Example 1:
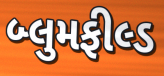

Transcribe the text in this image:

બ્લુમફીલ્ડ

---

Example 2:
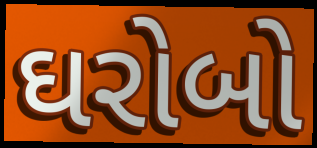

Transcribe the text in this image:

ઘરોબો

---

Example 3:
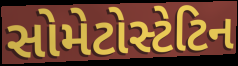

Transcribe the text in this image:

સોમેટોસ્ટેટિન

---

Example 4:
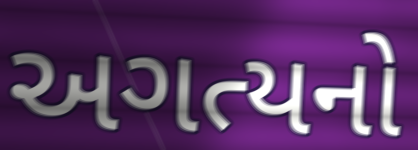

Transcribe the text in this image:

અગત્યનો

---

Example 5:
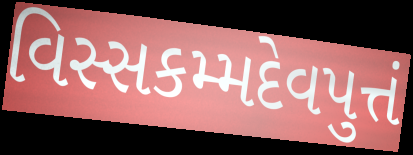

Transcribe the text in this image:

વિસ્સકમ્મદેવપુત્તં